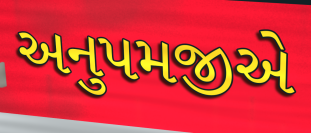
અનુપમજીએ